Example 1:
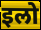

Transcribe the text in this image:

इलो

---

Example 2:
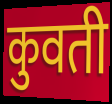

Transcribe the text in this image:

कुवती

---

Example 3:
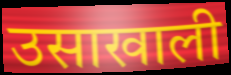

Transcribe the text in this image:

उसाखाली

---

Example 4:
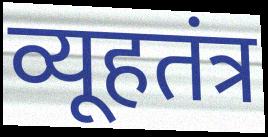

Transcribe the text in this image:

व्यूहतंत्र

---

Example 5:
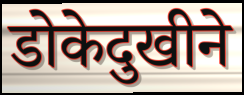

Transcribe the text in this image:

डोकेदुखीने